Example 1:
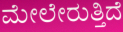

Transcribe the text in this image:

ಮೇಲೇರುತ್ತಿದೆ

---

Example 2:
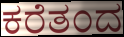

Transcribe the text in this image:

ಕರೆತಂದ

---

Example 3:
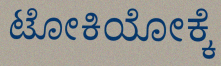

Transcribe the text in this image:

ಟೋಕಿಯೋಕ್ಕೆ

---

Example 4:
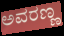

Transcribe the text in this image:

ಅವರಣ್ಣ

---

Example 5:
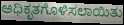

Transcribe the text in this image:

ಅಧಿಕೃತಗೊಳಿಸಲಾಯಿತು